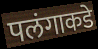
पलंगाकडे